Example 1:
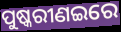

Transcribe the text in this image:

ପୁଷ୍କରୀଣଇରେ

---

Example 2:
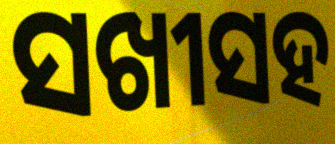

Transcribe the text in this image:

ସଖୀସହ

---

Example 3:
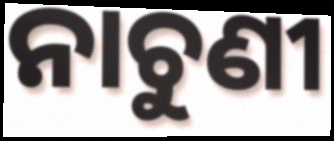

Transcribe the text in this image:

ନାଚୁଣୀ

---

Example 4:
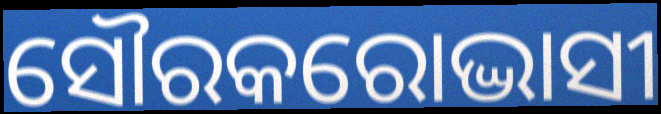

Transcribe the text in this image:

ସୌରକରୋଦ୍ଭାସୀ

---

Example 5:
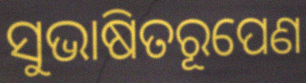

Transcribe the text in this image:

ସୁଭାଷିତରୂପେଣ